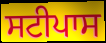
ਸਟੀਪਾਸ